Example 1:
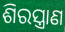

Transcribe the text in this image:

ଶିରସ୍ତ୍ରାଣ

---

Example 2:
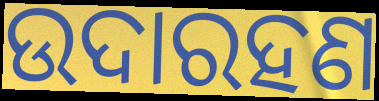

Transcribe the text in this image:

ଉଦାରହଣ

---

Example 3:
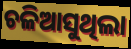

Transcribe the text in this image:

ଚଳିଆସୁଥିଲା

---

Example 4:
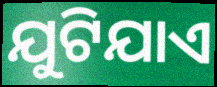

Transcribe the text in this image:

ଯୁଟିଯାଏ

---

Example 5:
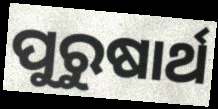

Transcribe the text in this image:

ପୁରୁଷାର୍ଥ